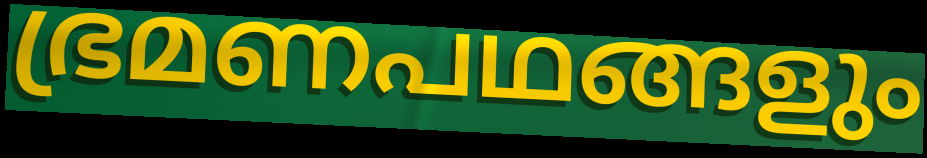
ഭ്രമണപഥങ്ങളും